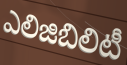
ఎలిజిబిలిటీ